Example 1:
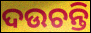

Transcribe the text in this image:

ଦଉଚନ୍ତି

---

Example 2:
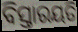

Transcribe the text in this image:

ବିସ୍ତାରୟତି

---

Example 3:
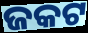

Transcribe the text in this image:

ଜକଟ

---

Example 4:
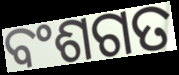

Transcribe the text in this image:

ବଂଶଗତ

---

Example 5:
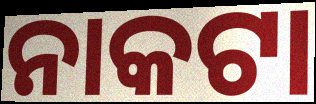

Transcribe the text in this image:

ନାକଟା